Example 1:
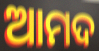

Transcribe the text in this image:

ଆମଦ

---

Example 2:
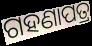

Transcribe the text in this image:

ଗହଣାପତ୍ର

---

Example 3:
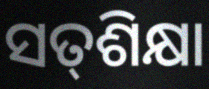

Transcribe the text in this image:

ସତ୍‌ଶିକ୍ଷା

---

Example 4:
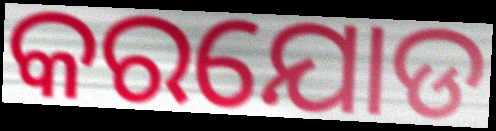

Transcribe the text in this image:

କରଯୋଡ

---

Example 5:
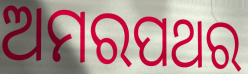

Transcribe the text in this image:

ଅମରପଥର